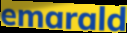
emarald